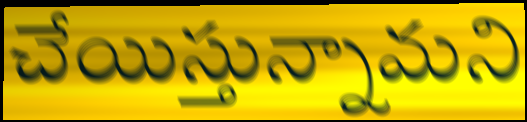
చేయిస్తున్నామని